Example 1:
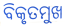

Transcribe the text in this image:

ବିକୃତମୁଖ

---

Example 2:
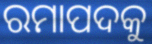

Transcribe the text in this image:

ରମାପଦକୁ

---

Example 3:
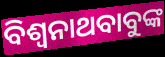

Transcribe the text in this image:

ବିଶ୍ୱନାଥବାବୁଙ୍କ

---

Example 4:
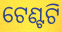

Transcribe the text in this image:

ଟେଣ୍ଟଟି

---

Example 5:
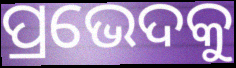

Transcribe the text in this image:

ପ୍ରଭେଦକୁ